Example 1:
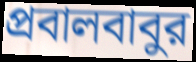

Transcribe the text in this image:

প্রবালবাবুর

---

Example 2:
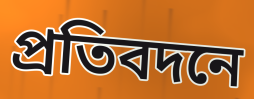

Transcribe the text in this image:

প্রতিবদনে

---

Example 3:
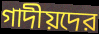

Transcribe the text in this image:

গাদীয়দের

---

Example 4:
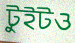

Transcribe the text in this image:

টুইটও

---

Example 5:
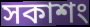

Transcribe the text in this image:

সকাশং